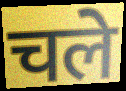
चले